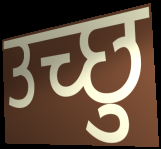
उच्छु